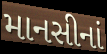
માનસીનાં